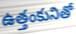
ఉత్తంకునితో